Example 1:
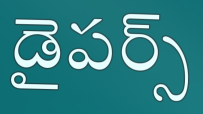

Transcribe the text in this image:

డైపర్స్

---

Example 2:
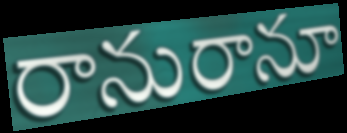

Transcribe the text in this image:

రానురానూ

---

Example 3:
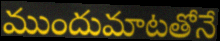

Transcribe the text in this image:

ముందుమాటతోనే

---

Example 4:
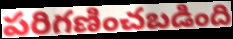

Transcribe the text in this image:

పరిగణించబడింది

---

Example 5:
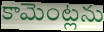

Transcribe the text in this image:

కామెంట్లను